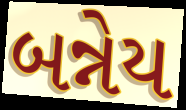
બન્નેય